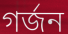
গর্জন